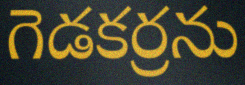
గెడకర్రను